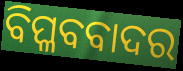
ବିପ୍ଳବବାଦର